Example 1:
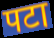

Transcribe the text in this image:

पटा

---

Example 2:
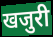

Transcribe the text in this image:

खजुरी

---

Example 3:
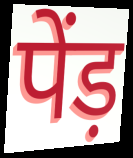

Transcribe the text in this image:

पेंड़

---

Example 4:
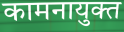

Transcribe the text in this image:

कामनायुक्त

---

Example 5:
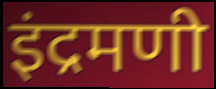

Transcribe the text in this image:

इंद्रमणी